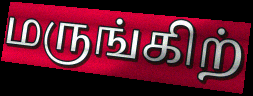
மருங்கிற்